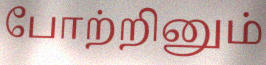
போற்றினும்